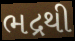
ભદ્રથી